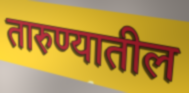
तारुण्यातील